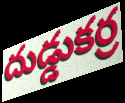
దుడ్డుకర్ర